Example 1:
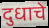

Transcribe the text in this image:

दुधाचे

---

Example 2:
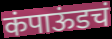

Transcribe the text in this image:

कंपाऊंडचं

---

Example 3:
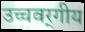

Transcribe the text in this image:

उच्चवर्गीय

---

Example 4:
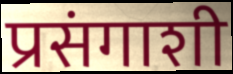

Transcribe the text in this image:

प्रसंगाशी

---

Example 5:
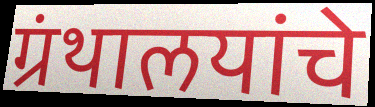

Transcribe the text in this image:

ग्रंथालयांचे